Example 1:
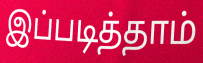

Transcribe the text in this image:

இப்படித்தாம்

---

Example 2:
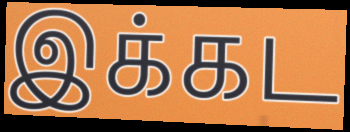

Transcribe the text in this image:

இக்கட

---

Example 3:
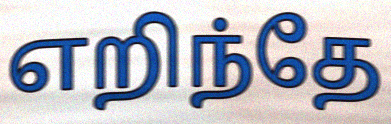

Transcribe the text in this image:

எறிந்தே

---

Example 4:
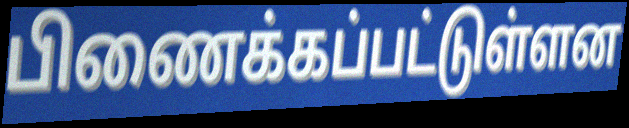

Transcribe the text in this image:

பிணைக்கப்பட்டுள்ளன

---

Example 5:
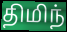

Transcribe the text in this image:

திமிந்